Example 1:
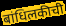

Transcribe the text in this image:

बांधिलकीची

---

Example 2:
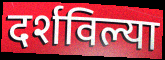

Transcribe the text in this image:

दर्शविल्या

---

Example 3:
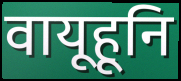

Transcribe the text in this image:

वायूहूनि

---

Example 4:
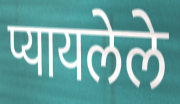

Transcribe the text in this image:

प्यायलेले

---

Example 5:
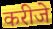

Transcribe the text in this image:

करीजे